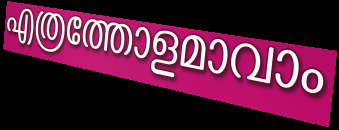
എത്രത്തോളമാവാം